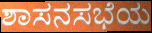
ಶಾಸನಸಭೆಯ